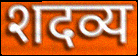
शदव्य